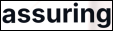
assuring